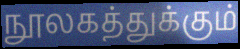
நூலகத்துக்கும்